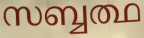
സബ്ബത്ഥ